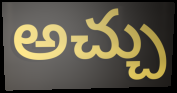
అచ్చు